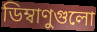
ডিম্বাণুগুলো